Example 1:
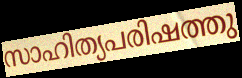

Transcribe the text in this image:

സാഹിത്യപരിഷത്തു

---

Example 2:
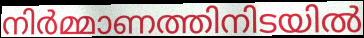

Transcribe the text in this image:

നിർമ്മാണത്തിനിടയിൽ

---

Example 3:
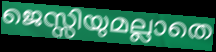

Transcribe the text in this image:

ജെസ്സിയുമല്ലാതെ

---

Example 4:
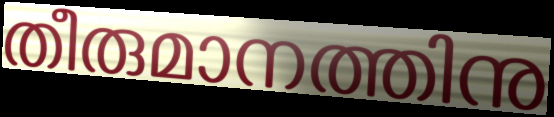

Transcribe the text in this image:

തീരുമാനത്തിനു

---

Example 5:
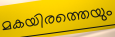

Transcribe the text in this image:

മകയിരത്തെയും